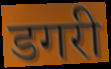
डगरी